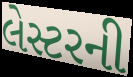
લેસ્ટરની